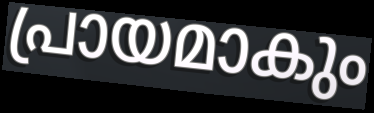
പ്രായമാകും